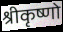
श्रीकृष्णो